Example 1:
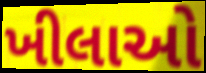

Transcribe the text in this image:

ખીલાઓ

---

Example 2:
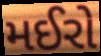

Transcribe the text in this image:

મઈરો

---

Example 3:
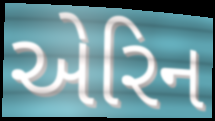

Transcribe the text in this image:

એરિન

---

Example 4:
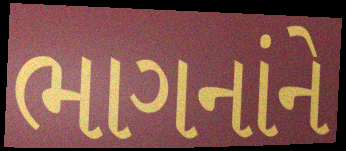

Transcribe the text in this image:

ભાગનાંને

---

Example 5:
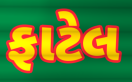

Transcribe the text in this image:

ફાટેલ